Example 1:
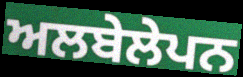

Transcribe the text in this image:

ਅਲਬੇਲੇਪਨ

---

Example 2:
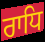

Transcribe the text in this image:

ਰਾਧਿ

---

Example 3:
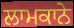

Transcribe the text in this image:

ਲਾਮਕਾਨੇ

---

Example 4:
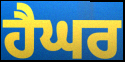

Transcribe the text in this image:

ਹੈਘਰ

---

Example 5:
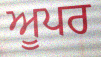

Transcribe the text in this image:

ਅੂਪਰ